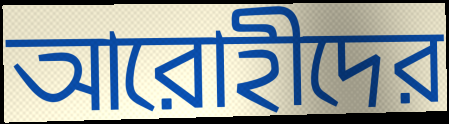
আরোহীদের